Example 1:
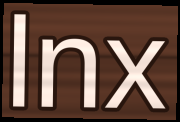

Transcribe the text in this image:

lnx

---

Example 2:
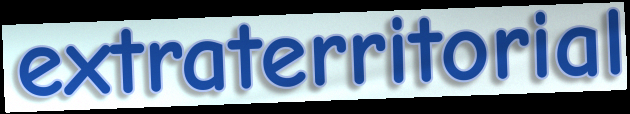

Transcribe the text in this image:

extraterritorial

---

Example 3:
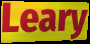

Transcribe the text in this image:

Leary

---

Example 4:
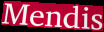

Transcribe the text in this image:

Mendis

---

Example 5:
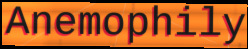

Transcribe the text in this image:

Anemophily